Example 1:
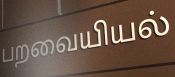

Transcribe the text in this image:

பறவையியல்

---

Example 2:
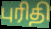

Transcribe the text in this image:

புரிதி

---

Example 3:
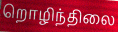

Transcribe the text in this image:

றொழிந்திலை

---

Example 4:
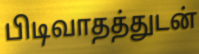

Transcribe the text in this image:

பிடிவாதத்துடன்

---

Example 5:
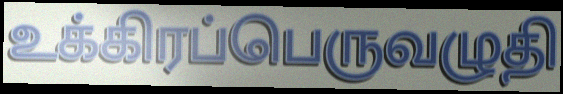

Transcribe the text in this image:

உக்கிரப்பெருவழுதி